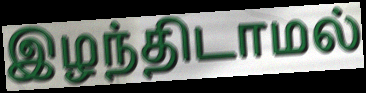
இழந்திடாமல்